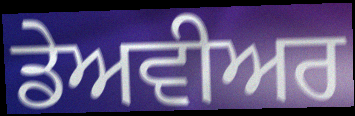
ਡੇਅਵੀਅਰ